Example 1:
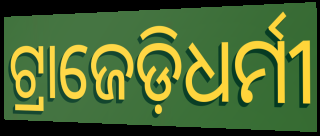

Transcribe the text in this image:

ଟ୍ରାଜେଡ଼ିଧର୍ମୀ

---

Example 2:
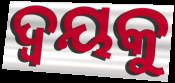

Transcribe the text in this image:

ଦ୍ୱୟକୁ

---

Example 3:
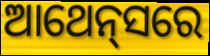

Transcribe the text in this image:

ଆଥେନ୍‍ସରେ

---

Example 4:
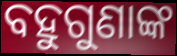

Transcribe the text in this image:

ବହୁଗୁଣାଙ୍କ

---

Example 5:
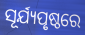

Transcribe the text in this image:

ସୂର୍ଯ୍ୟପୃଷ୍ଠରେ